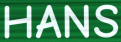
HANS